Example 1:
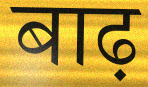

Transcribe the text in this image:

बाढ़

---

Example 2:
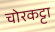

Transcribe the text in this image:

चोरकट्टा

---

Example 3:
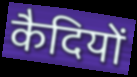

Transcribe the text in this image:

कैदियों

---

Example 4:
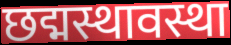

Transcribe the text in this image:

छद्मस्थावस्था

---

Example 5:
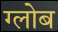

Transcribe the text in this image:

ग्लोब